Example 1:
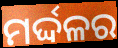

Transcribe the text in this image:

ମର୍ଦ୍ଦଳର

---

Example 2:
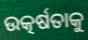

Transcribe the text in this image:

ଉତ୍କର୍ଷତାକୁ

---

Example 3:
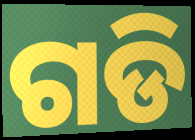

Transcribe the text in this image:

ଗଡି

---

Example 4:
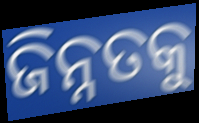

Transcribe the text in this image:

ଜିନ୍ନତକୁ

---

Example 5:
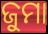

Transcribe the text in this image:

ଜୁମା